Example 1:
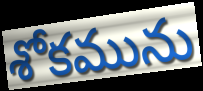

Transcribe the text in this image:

శోకమును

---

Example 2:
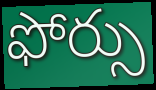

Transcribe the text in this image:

ఫోర్సు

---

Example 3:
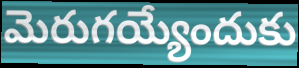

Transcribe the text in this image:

మెరుగయ్యేందుకు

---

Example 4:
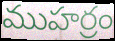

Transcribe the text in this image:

ముహర్రం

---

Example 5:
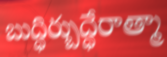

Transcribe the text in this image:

బుద్ధిర్బుద్ధేరాత్మా